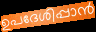
ഉപദേശിപ്പാൻ